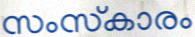
സംസ്‌കാരം